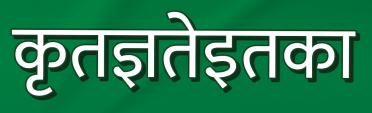
कृतज्ञतेइतका